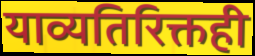
याव्यतिरिक्तही